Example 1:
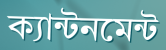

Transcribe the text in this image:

ক্যান্টনমেন্ট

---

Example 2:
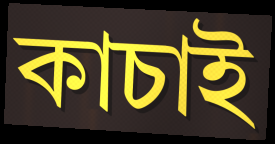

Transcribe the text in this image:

কাচাই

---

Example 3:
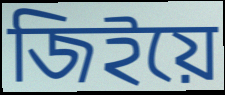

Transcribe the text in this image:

জিইয়ে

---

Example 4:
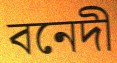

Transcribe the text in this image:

বনেদী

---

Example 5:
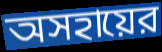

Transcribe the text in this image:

অসহায়ের